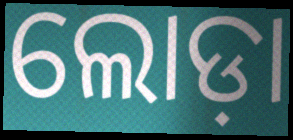
ଲୋଡ଼ା